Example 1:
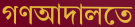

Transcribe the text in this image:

গণআদালতে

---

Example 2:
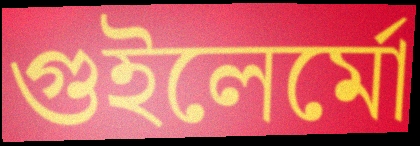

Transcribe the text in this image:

গুইলের্মো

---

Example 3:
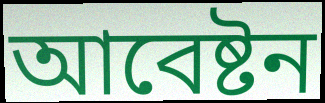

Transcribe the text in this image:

আবেষ্টন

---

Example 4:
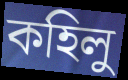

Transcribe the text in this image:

কহিলু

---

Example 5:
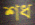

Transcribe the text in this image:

শধ